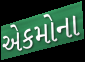
એકમોના